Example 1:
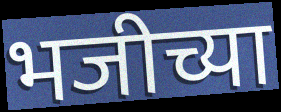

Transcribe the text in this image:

भजीच्या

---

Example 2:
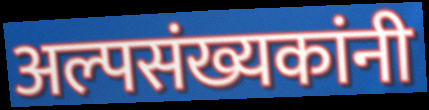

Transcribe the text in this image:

अल्पसंख्यकांनी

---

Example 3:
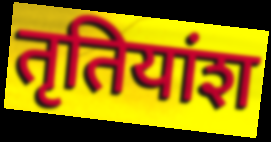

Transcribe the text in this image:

तृतियांश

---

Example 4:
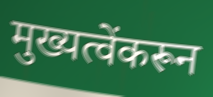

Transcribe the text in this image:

मुख्यत्वेंकरून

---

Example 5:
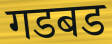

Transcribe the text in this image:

गडबड